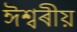
ঈশ্বৰীয়